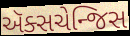
ઍક્સચેન્જિસ